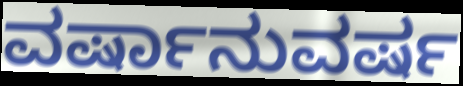
ವರ್ಷಾನುವರ್ಷ